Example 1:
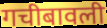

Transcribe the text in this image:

गचीबावली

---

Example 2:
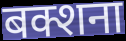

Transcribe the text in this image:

बक्शना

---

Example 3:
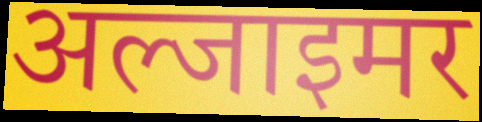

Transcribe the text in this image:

अल्जाइमर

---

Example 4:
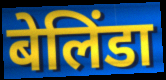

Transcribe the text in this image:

बेलिंडा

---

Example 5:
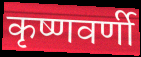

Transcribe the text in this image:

कृष्णवर्णी